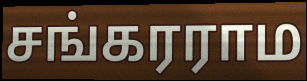
சங்கரராம